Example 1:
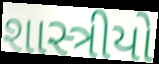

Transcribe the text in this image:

શાસ્ત્રીયો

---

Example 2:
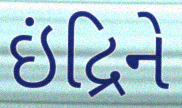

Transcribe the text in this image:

ઇંદ્રિને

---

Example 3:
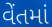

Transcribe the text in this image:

વેંતમાં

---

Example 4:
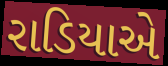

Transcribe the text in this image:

રાડિયાએ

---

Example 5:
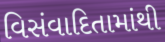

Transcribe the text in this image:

વિસંવાદિતામાંથી